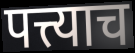
पत्त्याच